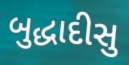
બુદ્ધાદીસુ